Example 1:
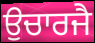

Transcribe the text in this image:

ਉਚਾਰਜੈ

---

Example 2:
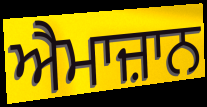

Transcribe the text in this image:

ਐਮਾਜ਼ਾਨ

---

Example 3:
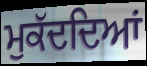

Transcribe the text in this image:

ਮੁਕੱਦਦਿਆਂ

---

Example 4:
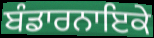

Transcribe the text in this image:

ਬੰਡਾਰਨਾਇਕੇ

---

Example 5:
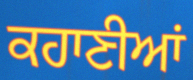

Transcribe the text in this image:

ਕਹਾਣੀਆਂ